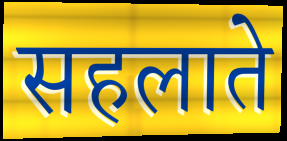
सहलाते